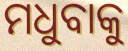
ମଧୁବାକୁ